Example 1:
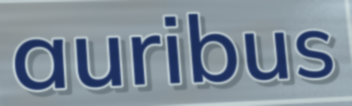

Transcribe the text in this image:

auribus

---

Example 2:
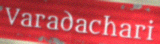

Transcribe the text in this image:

Varadachari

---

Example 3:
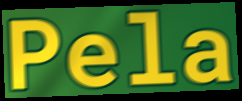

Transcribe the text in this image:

Pela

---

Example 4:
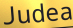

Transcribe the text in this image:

Judea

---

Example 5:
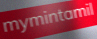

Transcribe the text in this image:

mymintamil